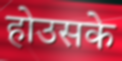
होउसके